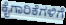
ಕೈಗಾರಿಕೆಗಳಿಗೆ